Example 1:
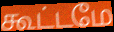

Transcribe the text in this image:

கூட்டமே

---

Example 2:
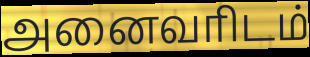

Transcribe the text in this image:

அனைவரிடம்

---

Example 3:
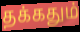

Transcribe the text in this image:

தக்கதும்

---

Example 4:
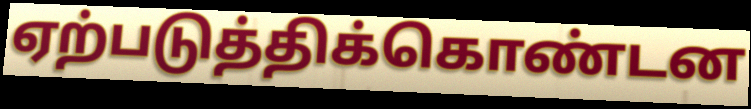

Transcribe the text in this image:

ஏற்படுத்திக்கொண்டன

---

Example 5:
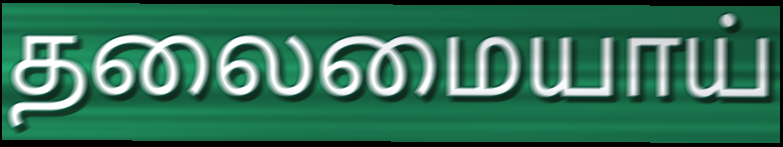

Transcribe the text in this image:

தலைமையாய்